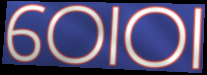
ଠୋଠା